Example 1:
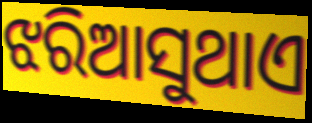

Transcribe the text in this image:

ଝରିଆସୁଥାଏ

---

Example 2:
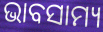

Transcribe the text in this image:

ଭାବସାମ୍ୟ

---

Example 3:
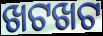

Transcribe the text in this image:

ଖଟଖଟ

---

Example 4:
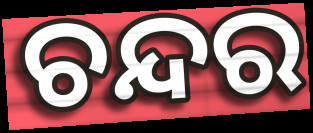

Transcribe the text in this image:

ଚନ୍ଦର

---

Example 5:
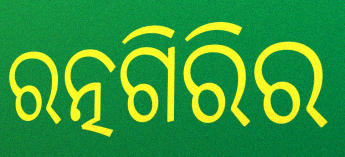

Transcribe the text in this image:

ରତ୍ନଗିରିର